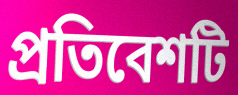
প্রতিবেশটি